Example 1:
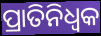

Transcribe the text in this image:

ପ୍ରାତିନିଧ୍ଵକ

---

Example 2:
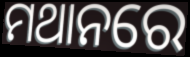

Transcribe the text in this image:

ମଥାନରେ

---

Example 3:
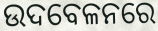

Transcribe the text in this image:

ଉଦବେଳନରେ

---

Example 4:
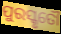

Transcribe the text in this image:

ପୁରସ୍କୃତୌ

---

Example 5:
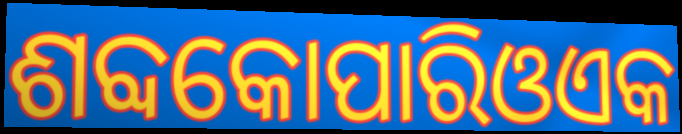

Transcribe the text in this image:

ଶବ୍ଦକୋପାରିଓଏକ